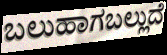
ಬಲುಹಾಗಬಲ್ಲುದೆ